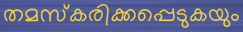
തമസ്കരിക്കപ്പെടുകയും